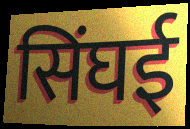
सिंघई